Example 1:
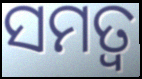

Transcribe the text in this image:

ସମତ୍ଵ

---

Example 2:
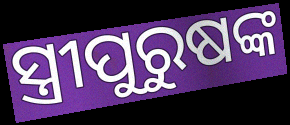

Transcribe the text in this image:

ସ୍ତ୍ରୀପୁରୁଷଙ୍କ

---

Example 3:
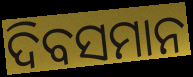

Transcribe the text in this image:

ଦିବସମାନ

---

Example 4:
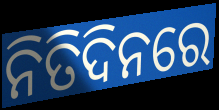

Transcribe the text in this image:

ନିତିଦିନରେ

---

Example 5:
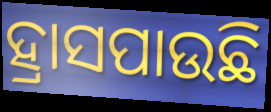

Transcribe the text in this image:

ହ୍ରାସପାଉଛି